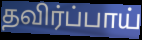
தவிர்ப்பாய்